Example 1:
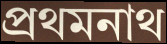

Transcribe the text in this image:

প্রথমনাথ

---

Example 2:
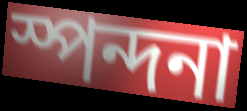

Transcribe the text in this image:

স্পন্দনা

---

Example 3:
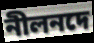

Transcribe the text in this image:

নীলনদে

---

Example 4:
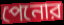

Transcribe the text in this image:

পেনোর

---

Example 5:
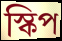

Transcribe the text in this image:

স্কিপ